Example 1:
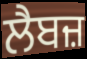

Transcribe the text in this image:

ਲੈਬਜ਼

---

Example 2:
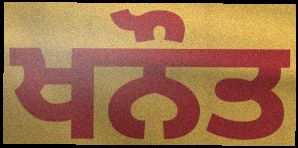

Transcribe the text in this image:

ਖਨੌਤ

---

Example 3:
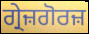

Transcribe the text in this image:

ਗ੍ਰੇਜ਼ਗੋਰਜ਼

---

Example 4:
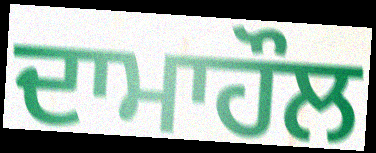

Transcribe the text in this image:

ਦਾਮਾਹੌਲ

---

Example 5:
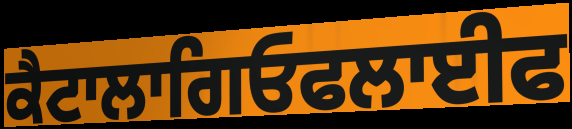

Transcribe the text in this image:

ਕੈਟਾਲਾਗਿਓਫਲਾਈਫ